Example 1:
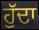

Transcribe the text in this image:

ਹੁੱਦਾ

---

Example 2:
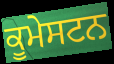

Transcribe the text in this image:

ਕੂਮੇਸਟਨ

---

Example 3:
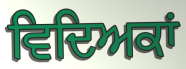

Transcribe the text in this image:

ਵਿਦਿਅਕਾਂ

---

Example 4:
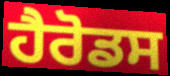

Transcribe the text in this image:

ਹੈਰੋਡਸ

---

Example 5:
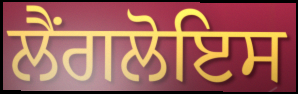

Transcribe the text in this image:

ਲੈਂਗਲੋਇਸ